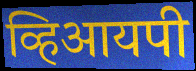
व्हिआयपी